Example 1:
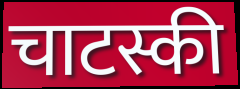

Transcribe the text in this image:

चाटस्की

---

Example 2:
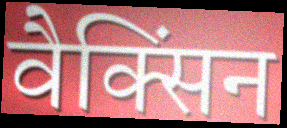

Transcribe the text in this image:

वैक्सिंन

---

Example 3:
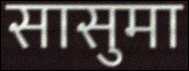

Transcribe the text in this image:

सासुमा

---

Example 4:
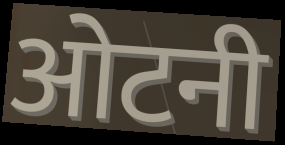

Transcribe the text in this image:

ओटनी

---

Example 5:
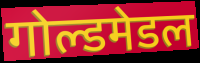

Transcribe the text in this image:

गोल्डमेडल